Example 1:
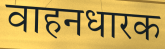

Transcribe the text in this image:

वाहनधारक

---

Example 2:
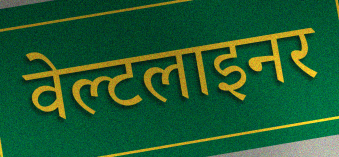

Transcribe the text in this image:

वेल्टलाइनर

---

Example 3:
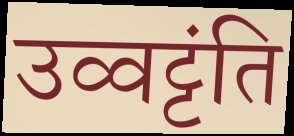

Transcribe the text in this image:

उव्वट्टंति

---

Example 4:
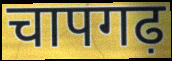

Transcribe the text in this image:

चापगढ़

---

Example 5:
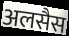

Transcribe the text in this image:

अलसैस